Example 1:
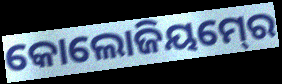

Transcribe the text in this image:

କୋଲୋଜିୟମ୍‍ରେ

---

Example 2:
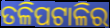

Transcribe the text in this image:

ତଳିପଟାଳିର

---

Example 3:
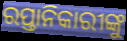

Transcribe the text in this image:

ରପ୍ତାନିକାରୀଙ୍କୁ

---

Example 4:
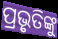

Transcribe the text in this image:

ପ୍ରଭୃତିଙ୍କୁ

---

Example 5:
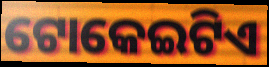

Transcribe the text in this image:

ଟୋକେଇଟିଏ